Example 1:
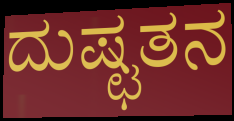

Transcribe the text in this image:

ದುಷ್ಟತನ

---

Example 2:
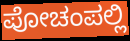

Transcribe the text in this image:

ಪೋಚಂಪಲ್ಲಿ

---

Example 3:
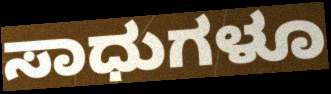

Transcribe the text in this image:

ಸಾಧುಗಳೂ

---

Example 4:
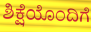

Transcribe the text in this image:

ಶಿಕ್ಷೆಯೊಂದಿಗೆ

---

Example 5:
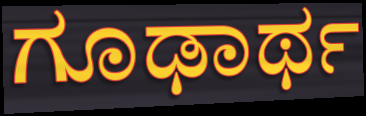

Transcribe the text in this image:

ಗೂಢಾರ್ಥ